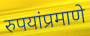
रुपयांप्रमाणे